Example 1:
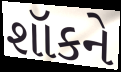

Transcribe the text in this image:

શૉકને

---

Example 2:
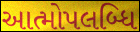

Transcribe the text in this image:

આત્મોપલબ્ધિ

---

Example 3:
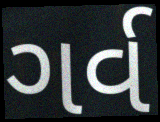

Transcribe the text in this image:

ગર્વ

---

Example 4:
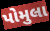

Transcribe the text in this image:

પોમુલા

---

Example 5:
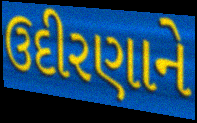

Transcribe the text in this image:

ઉદીરણાને